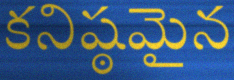
కనిష్ఠమైన